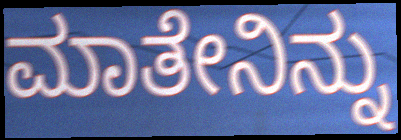
ಮಾತೇನಿನ್ನು